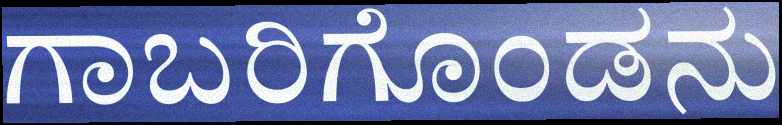
ಗಾಬರಿಗೊಂಡನು